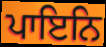
ਪਾਇਨਿ